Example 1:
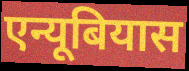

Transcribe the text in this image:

एन्यूबियास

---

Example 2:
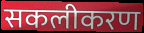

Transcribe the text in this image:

सकलीकरण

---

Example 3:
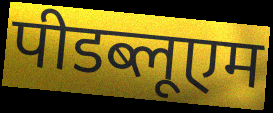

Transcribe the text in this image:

पीडब्लूएम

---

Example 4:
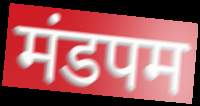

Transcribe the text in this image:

मंडपम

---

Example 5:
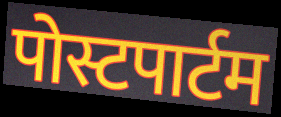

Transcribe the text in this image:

पोस्टपार्टम